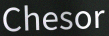
Chesor